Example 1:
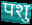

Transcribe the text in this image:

पशु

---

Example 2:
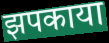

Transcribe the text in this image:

झपकाया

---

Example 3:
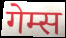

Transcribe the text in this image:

गेम्स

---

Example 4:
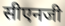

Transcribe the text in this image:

सीएनजी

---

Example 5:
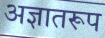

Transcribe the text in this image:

अज्ञातरूप